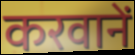
करवानें